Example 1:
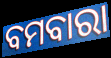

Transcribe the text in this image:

ବମବାରା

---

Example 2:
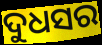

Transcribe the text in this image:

ଦୁଧସର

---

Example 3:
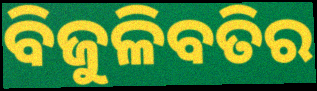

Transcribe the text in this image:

ବିଜୁଳିବତିର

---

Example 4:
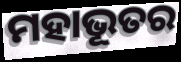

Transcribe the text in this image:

ମହାଭୂତର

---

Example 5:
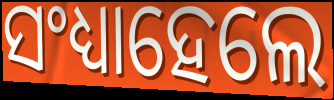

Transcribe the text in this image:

ସଂଧ୍ୟାହେଲେ